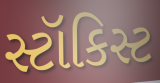
સ્ટૉકિસ્ટ